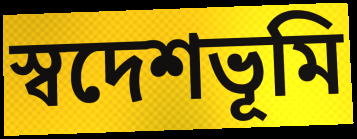
স্বদেশভূমি